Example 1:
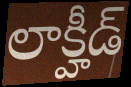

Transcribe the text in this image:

లాక్హీడ్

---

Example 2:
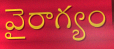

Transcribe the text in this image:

వైరాగ్యం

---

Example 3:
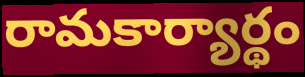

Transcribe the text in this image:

రామకార్యార్థం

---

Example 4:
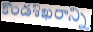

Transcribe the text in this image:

కొండశిఖరాన్ని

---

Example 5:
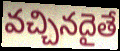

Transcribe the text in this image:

వచ్చినదైతే